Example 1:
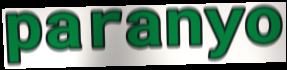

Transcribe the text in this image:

paranyo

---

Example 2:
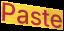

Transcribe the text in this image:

Paste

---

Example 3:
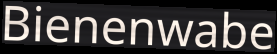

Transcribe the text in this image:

Bienenwabe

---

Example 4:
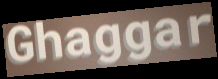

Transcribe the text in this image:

Ghaggar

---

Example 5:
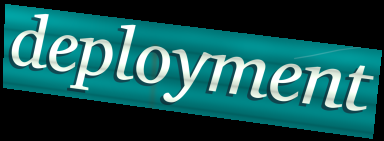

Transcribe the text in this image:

deployment